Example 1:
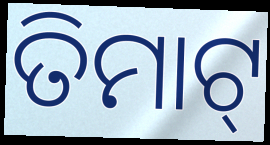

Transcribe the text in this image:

ତିମାଟ୍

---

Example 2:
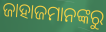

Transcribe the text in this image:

ଜାହାଜମାନଙ୍କରୁ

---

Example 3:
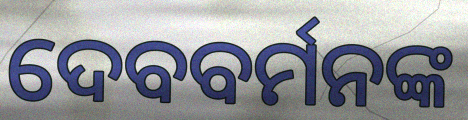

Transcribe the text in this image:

ଦେବବର୍ମନଙ୍କ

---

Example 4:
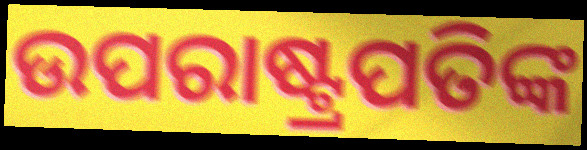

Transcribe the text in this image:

ଉପରାଷ୍ଟ୍ରପତିଙ୍କ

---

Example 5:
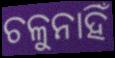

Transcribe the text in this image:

ଚଳୁନାହିଁ